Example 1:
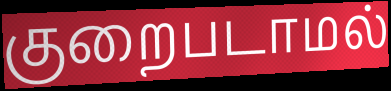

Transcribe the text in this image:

குறைபடாமல்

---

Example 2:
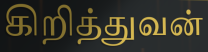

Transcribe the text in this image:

கிறித்துவன்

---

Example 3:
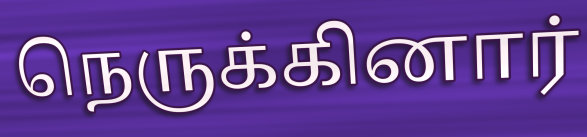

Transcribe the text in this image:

நெருக்கினார்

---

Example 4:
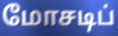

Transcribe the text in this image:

மோசடிப்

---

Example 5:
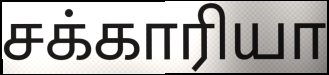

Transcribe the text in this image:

சக்காரியா